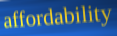
affordability